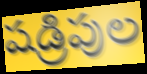
షడ్రిపుల